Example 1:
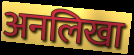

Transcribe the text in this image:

अनलिखा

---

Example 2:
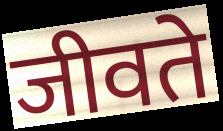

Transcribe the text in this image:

जीवते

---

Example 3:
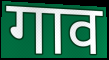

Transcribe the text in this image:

गाव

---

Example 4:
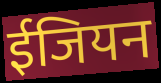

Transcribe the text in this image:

ईजियन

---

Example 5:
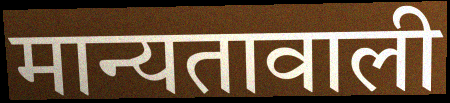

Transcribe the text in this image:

मान्यतावाली